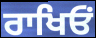
ਰਾਖਿਓਂ